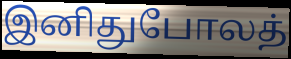
இனிதுபோலத்